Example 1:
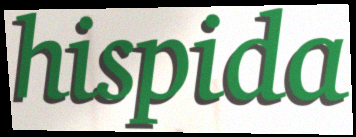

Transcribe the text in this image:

hispida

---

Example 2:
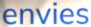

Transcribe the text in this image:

envies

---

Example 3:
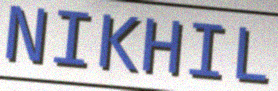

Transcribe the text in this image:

NIKHIL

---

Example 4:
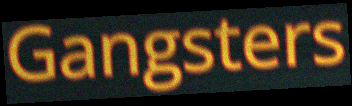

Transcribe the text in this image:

Gangsters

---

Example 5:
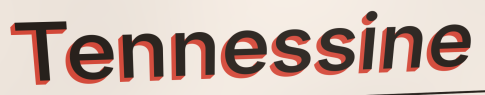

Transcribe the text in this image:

Tennessine